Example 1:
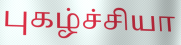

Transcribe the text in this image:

புகழ்ச்சியா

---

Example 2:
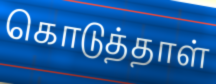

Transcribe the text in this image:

கொடுத்தாள்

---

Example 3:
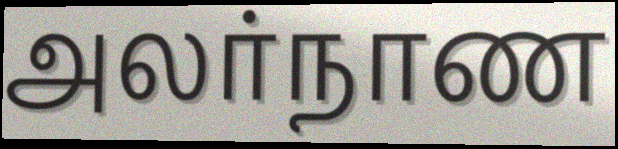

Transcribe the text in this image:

அலர்நாண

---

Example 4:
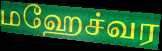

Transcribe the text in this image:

மஹேச்வர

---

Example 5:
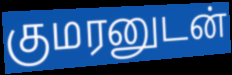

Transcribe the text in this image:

குமரனுடன்